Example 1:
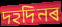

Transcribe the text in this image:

দহদিনৰ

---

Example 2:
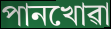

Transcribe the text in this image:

পানখোৱা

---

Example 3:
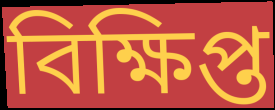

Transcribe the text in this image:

বিক্ষিপ্ত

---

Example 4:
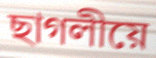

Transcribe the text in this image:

ছাগলীয়ে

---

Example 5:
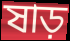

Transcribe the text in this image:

ষাড়